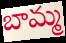
బామ్మ